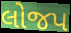
લોજપ